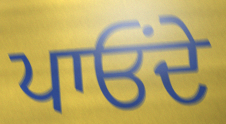
ਪਾਓਂਦੇ